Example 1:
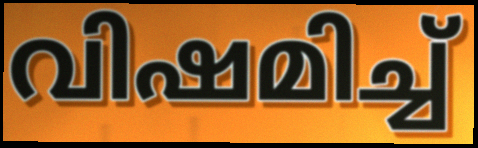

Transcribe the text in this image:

വിഷമിച്ച്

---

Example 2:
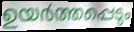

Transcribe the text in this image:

ഉയർത്തപ്പെടും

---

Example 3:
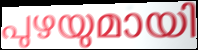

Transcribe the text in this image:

പുഴയുമായി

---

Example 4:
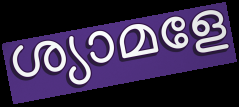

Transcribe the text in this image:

ശ്യാമളേ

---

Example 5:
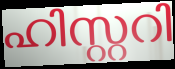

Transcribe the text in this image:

ഹിസ്റ്ററി